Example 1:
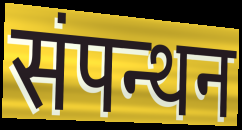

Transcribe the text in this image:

संपन्थन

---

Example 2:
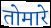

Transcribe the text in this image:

तोमारे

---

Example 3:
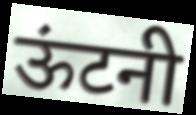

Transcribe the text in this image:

ऊंटनी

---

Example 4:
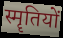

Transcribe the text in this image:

स्मॄतियों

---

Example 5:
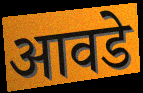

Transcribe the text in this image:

आवडे